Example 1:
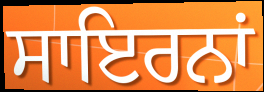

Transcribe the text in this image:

ਸਾਇਰਨਾਂ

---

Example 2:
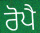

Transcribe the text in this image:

ਰੋਪੈ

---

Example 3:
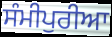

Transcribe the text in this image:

ਸੰਮੀਪੁਰੀਆ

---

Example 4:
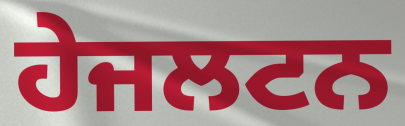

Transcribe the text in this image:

ਹੇਜਲਟਨ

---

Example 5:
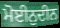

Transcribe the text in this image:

ਮੋਈਨੁਦੀਨ